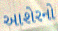
આશેરનો